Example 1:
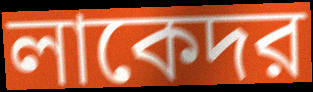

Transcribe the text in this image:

লাকেদর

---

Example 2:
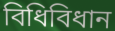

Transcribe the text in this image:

বিধিবিধান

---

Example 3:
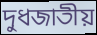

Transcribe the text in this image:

দুধজাতীয়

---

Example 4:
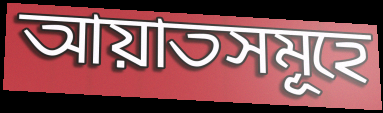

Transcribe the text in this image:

আয়াতসমূহে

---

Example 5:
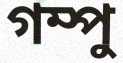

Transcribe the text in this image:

গম্পু